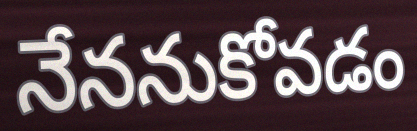
నేననుకోవడం